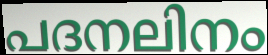
പദനലിനം